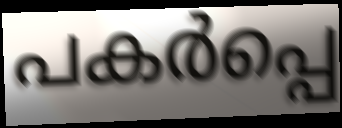
പകർപ്പെ